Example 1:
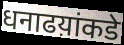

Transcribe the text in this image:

धनाढय़ांकडे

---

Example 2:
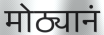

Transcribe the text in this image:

मोठ्यानं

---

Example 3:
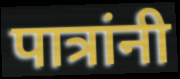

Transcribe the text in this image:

पात्रांनी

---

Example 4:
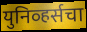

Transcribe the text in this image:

युनिव्हर्सचा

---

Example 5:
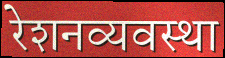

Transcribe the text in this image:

रेशनव्यवस्था